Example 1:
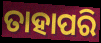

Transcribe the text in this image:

ତାହାପରି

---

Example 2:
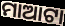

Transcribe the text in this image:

ମାଆଟା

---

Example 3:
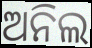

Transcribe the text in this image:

ଅନିଲ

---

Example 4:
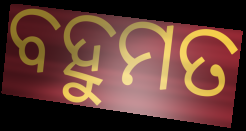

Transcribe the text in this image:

ବହୁମତ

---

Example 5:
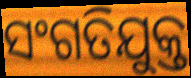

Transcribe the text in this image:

ସଂଗତିଯୁକ୍ତ